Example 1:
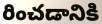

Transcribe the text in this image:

రించడానికి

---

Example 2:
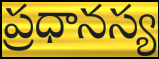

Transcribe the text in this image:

ప్రధానస్య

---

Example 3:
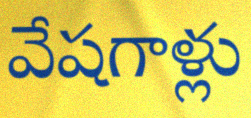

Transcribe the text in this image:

వేషగాళ్లు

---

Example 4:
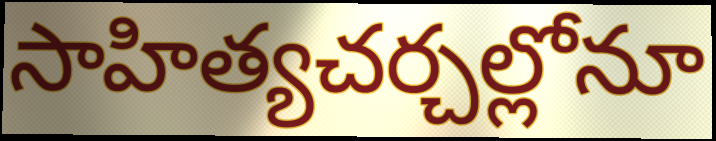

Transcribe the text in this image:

సాహిత్యచర్చల్లోనూ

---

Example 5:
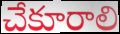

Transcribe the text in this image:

చేకూరాలి